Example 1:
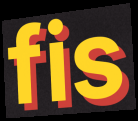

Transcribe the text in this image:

fis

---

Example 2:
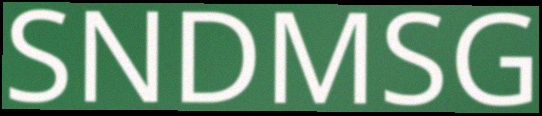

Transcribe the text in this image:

SNDMSG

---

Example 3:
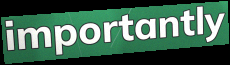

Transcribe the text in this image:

importantly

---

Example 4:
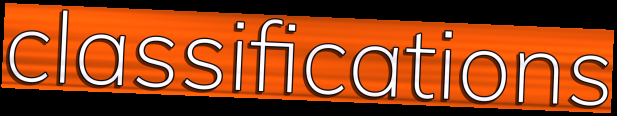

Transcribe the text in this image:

classifications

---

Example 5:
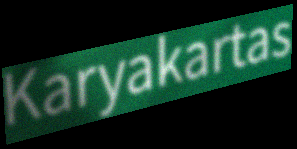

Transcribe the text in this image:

Karyakartas